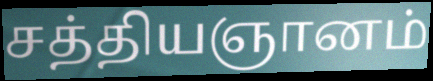
சத்தியஞானம்